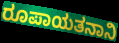
ರೂಪಾಯತನಾನಿ